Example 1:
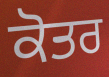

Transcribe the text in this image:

ਕੋਤਰ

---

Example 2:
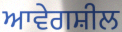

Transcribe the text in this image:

ਆਵੇਗਸ਼ੀਲ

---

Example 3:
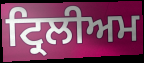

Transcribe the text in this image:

ਟ੍ਰਿਲੀਅਮ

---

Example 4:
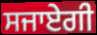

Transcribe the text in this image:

ਸਜਾਏਗੀ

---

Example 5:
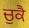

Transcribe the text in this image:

ਚੁਕੈ